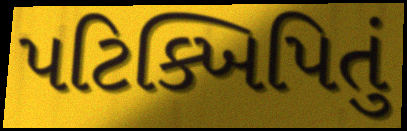
પટિક્ખિપિતું